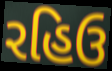
રહિઉ